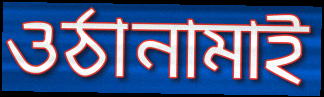
ওঠানামাই